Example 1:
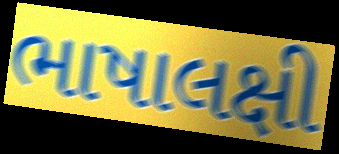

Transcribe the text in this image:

ભાષાલક્ષી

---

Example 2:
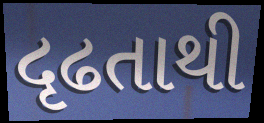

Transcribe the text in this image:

દૃઢતાથી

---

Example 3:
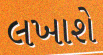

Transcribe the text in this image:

લખાશે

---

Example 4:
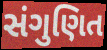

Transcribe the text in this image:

સંગુણિત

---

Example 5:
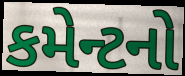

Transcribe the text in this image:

કમેન્ટનો